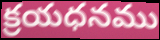
క్రయధనము